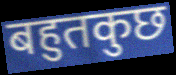
बहुतकुछ